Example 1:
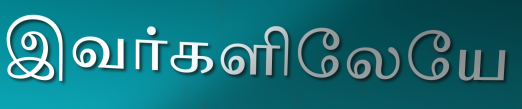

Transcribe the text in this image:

இவர்களிலேயே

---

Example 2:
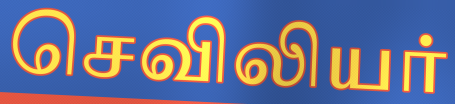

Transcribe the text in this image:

செவிலியர்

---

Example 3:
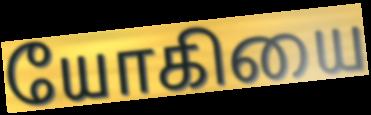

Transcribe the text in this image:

யோகியை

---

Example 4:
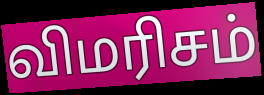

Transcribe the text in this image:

விமரிசம்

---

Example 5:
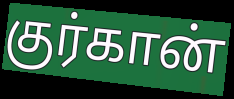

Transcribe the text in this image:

குர்கான்